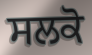
ਸਲਕੋ